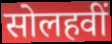
सोलहवीं